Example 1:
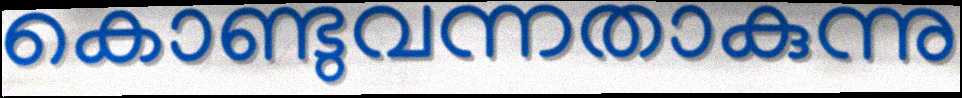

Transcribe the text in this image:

കൊണ്ടുവന്നതാകുന്നു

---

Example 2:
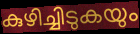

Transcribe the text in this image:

കുഴിച്ചിടുകയും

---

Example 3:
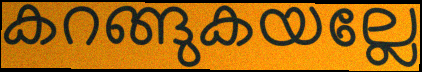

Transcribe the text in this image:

കറങ്ങുകയല്ലേ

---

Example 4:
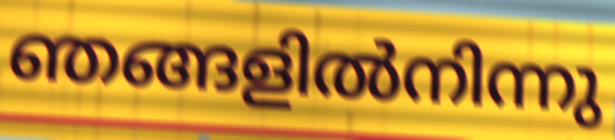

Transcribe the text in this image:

ഞങ്ങളിൽനിന്നു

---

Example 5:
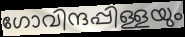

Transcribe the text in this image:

ഗോവിന്ദപ്പിള്ളയും